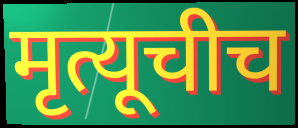
मृत्यूचीच